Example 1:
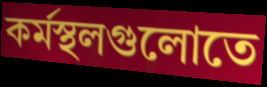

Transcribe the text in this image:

কর্মস্থলগুলোতে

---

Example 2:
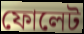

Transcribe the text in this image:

ফোলেট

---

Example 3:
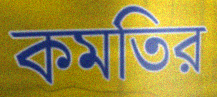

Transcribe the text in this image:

কমতির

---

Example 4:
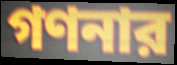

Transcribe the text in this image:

গণনার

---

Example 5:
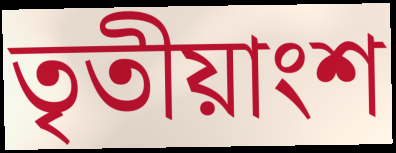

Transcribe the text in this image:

তৃতীয়াংশ